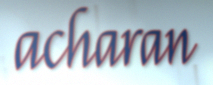
acharan